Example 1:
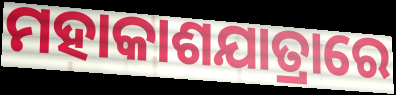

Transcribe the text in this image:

ମହାକାଶଯାତ୍ରାରେ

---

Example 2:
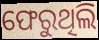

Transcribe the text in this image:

ଫେରୁଥିଲି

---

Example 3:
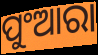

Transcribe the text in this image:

ପୁଂଆରା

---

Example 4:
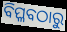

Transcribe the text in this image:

ବିପ୍ଳବଠାରୁ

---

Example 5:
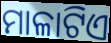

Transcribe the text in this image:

ମାଳାଟିଏ